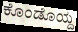
ಕೊಂಡೊಯ್ದ